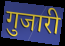
गुजारी